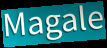
Magale